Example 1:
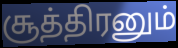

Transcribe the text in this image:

சூத்திரனும்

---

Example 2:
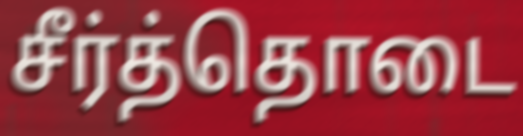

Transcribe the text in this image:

சீர்த்தொடை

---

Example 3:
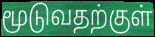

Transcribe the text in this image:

மூடுவதற்குள்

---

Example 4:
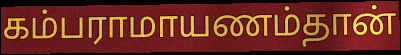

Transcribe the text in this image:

கம்பராமாயணம்தான்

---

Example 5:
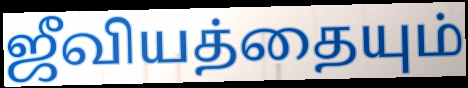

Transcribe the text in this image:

ஜீவியத்தையும்